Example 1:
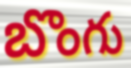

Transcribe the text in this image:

బొంగు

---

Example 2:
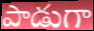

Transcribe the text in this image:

పాడుగా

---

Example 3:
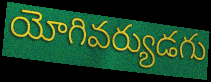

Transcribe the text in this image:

యోగివర్యుడగు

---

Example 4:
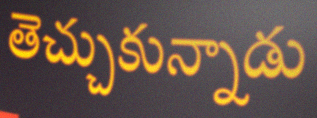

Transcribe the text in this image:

తెచ్చుకున్నాడు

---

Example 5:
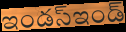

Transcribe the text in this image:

ఇండస్ఇండ్